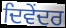
ਦਿਵੇਂਦਰ